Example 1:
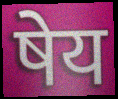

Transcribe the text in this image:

षेय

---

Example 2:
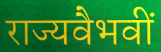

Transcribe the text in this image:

राज्यवैभवीं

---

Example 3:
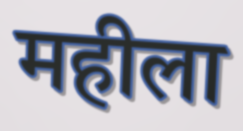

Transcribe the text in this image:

महीला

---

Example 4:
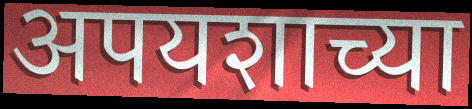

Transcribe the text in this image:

अपयशाच्या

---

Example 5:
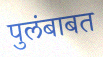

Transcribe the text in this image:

पुलंबाबत